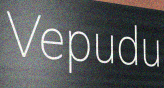
Vepudu